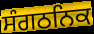
ਸੰਗਠਨਿਕ